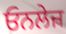
ਓਨਲੇਜ਼